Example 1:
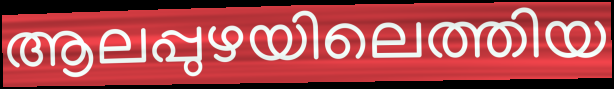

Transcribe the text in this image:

ആലപ്പുഴയിലെത്തിയ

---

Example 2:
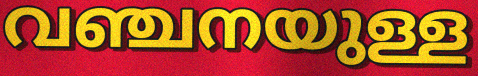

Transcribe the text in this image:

വഞ്ചനയുള്ള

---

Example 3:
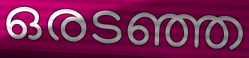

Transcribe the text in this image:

ഒരടഞ്ഞ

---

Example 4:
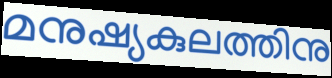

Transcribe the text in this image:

മനുഷ്യകുലത്തിനു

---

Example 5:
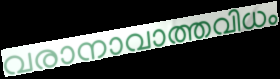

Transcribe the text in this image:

വരാനാവാത്തവിധം